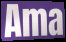
Ama